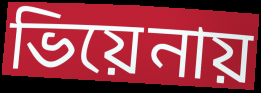
ভিয়েনায়